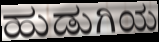
ಹುಡುಗಿಯ